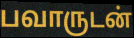
பவாருடன்